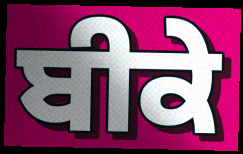
ਬੀਕੇ